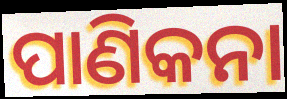
ପାଣିକନା